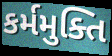
કર્મમુક્તિ